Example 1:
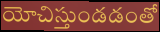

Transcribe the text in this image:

యోచిస్తుండడంతో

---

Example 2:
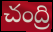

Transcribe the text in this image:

చంద్రి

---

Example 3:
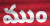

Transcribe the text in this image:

ముం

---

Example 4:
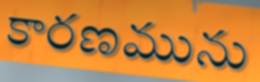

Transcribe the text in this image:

కారణమును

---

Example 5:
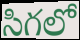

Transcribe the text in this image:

సిగలో